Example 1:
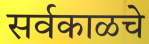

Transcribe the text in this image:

सर्वकाळचे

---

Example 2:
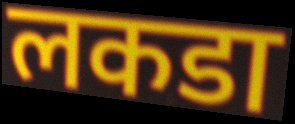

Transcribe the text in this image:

लकडा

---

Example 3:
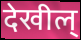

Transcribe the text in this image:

देखील्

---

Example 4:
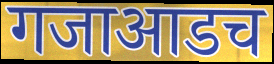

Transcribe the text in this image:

गजाआडच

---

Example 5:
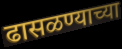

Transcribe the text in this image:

ढासळण्याच्या